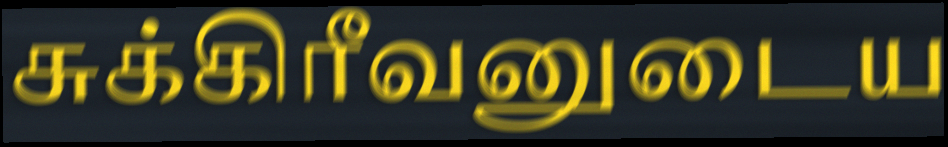
சுக்கிரீவனுடைய